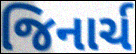
જિનાર્ચ